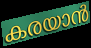
കരയാൻ